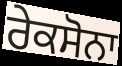
ਰੇਕਸੋਨਾ